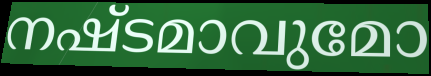
നഷ്ടമാവുമോ